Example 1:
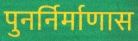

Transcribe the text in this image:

पुनर्निर्माणास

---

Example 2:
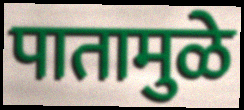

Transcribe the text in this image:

पातामुळे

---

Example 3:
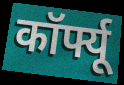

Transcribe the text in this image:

कॉर्फ्यू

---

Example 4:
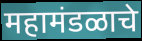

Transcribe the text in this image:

महामंडळाचे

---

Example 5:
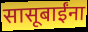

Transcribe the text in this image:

सासूबाईंना